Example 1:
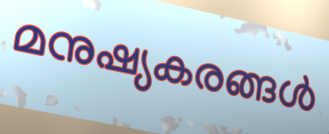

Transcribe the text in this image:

മനുഷ്യകരങ്ങൾ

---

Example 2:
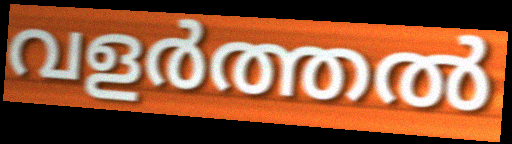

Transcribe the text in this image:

വളർത്തൽ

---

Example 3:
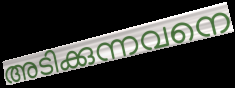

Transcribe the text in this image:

അടിക്കുന്നവനെ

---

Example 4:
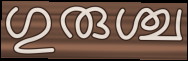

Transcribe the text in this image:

ഗുരുശ്ച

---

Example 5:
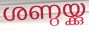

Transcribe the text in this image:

ശണ്ഠയ്ക്കു